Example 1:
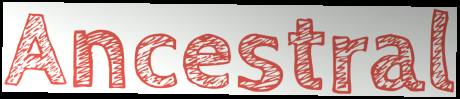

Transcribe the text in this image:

Ancestral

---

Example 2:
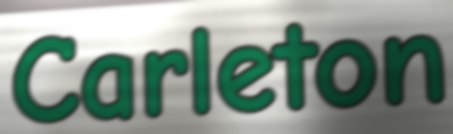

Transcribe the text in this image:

Carleton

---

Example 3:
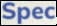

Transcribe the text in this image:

Spec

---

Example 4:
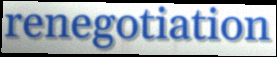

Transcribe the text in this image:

renegotiation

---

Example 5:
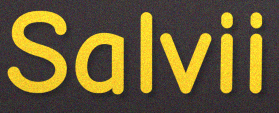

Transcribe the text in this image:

Salvii